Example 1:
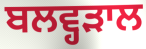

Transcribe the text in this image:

ਬਲਵ੍ਹੜਾਲ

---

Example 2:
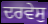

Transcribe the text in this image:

ਦਰਵੇਸੁ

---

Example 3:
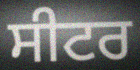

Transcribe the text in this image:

ਸੀਟਰ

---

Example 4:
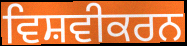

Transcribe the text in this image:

ਵਿਸ਼ਵੀਕਰਨ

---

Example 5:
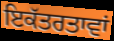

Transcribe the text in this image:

ਇਕੱਤਰਤਾਵਾਂ